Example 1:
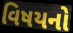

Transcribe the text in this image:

વિષયનો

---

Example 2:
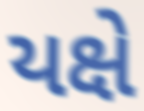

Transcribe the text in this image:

યક્ષે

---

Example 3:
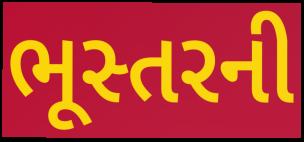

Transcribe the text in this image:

ભૂસ્તરની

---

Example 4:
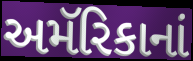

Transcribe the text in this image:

અમૅરિકાનાં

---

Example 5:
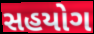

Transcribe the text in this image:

સહયોગ